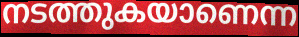
നടത്തുകയാണെന്ന